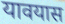
यावयास